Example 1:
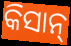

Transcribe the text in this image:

କିସାନ୍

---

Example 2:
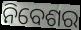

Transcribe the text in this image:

ନିବେଶର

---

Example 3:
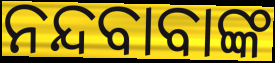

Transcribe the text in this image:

ନନ୍ଦବାବାଙ୍କ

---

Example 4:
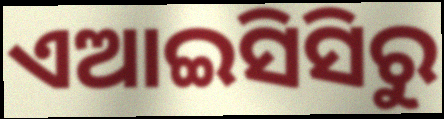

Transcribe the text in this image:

ଏଆଇସିସିରୁ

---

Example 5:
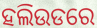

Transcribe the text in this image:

ହଲିଉଡରେ